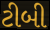
ટીબી